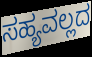
ಸಹ್ಯವಲ್ಲದ